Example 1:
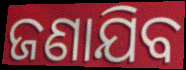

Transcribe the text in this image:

ଜଣାଯିବ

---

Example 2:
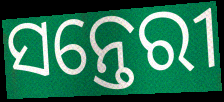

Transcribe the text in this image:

ସନ୍ତେରୀ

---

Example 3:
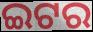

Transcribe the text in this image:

ଇଟର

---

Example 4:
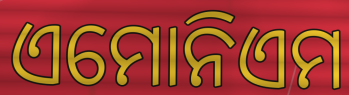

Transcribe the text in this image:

ଏମୋନିଏମ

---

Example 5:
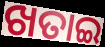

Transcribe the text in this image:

ଖତାଇ